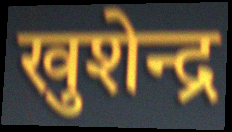
खुशेन्द्र